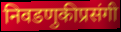
निवडणुकीप्रसंगी